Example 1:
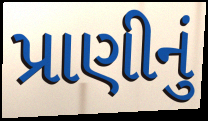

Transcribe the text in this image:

પ્રાણીનું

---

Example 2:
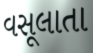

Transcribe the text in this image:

વસૂલાતા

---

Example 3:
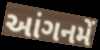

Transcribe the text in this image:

આંગનમેં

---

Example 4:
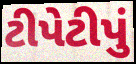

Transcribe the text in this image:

ટીપેટીપું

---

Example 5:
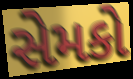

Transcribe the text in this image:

સેમકો